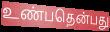
உண்பதென்பது